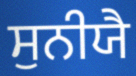
ਸੁਨੀਯੈ